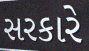
સરકારે